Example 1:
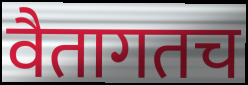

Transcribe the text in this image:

वैतागतच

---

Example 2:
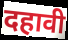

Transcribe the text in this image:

दहावी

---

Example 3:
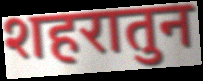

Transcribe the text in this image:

शहरातुन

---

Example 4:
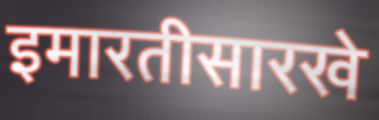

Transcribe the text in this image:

इमारतीसारखे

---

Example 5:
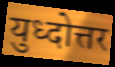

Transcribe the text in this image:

युध्दोत्तर